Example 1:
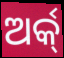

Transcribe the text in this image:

ଅର୍କ୍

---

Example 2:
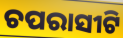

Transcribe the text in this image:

ଚପରାସୀଟି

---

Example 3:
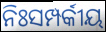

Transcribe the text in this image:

ନିଃସମ୍ପର୍କୀୟ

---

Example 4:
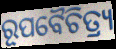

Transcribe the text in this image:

ରୂପବୈଚିତ୍ର୍ୟ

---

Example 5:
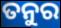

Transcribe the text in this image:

ତନୁର